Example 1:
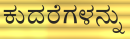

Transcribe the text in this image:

ಕುದರೆಗಳನ್ನು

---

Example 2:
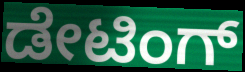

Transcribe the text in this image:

ಡೇಟಿಂಗ್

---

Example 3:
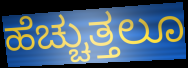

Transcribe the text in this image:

ಹೆಚ್ಚುತ್ತಲೂ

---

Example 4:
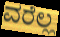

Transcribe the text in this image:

ವರೆಲ್ಲ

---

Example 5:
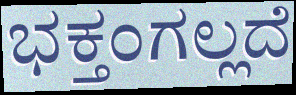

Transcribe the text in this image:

ಭಕ್ತಂಗಲ್ಲದೆ